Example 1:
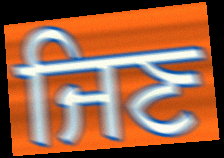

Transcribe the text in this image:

ਜਿਣ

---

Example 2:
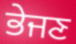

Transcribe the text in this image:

ਭੇਜਣ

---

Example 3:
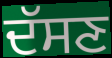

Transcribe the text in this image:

ਦੱਸਣ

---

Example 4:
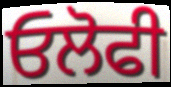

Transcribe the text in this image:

ਓਲੋਫੀ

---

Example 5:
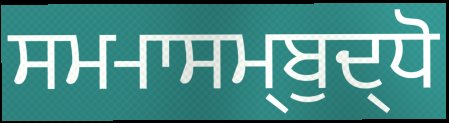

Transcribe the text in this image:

ਸਮ੍ਮਾਸਮ੍ਬੁਦ੍ਧੋ